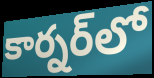
కార్నర్‌లో